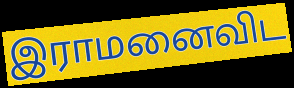
இராமனைவிட